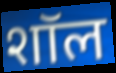
शॉल